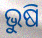
ଭୁଷି